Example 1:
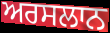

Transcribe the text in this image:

ਅਰਸਲਾਨ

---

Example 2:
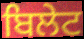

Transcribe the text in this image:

ਬਿਲੇਟ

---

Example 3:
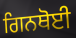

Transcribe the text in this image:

ਗਿਨਥੋਈ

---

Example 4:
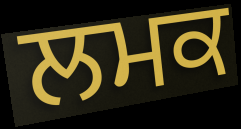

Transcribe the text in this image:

ਲਮਕ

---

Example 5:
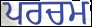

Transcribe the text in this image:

ਪਰਚਮ